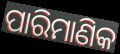
ପାରିମାଣିକ